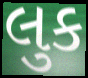
લુક